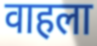
वाहला